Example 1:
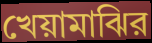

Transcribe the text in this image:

খেয়ামাঝির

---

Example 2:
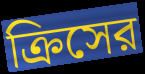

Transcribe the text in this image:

ক্রিসের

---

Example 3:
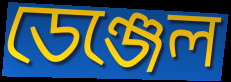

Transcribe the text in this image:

ডেঞ্জেল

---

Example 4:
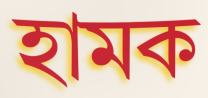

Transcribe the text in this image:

হামক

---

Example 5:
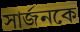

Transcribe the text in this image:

সার্জনকে